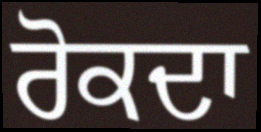
ਰੋਕਦਾ